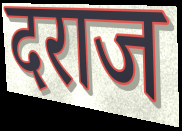
दराज